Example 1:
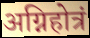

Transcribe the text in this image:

अग्निहोत्रं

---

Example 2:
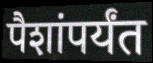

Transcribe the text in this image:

पैशांपर्यंत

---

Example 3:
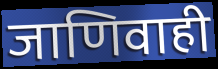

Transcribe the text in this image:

जाणिवाही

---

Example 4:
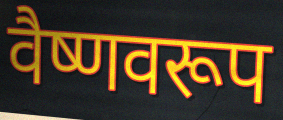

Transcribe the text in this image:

वैष्णवरूप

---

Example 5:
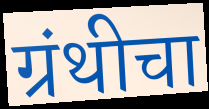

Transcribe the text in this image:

ग्रंथीचा